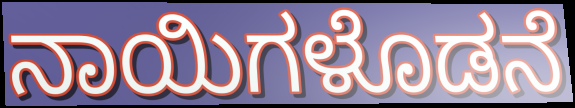
ನಾಯಿಗಳೊಡನೆ